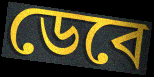
ডেবে